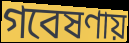
গবেষণায়